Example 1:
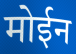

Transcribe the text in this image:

मोईन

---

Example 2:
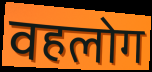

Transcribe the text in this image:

वहलोग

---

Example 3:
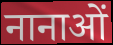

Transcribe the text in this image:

नानाओं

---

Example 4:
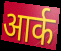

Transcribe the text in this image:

आर्क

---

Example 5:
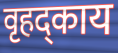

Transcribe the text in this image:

वृहद्काय